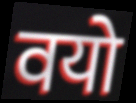
वयो